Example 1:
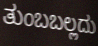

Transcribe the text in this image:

ತುಂಬಬಲ್ಲದು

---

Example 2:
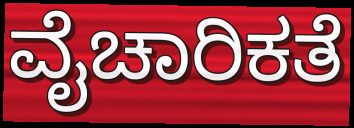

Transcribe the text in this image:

ವೈಚಾರಿಕತೆ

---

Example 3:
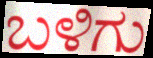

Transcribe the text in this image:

ಬಳಿಗು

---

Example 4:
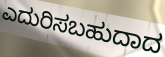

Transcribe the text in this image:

ಎದುರಿಸಬಹುದಾದ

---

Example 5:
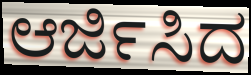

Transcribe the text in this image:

ಆರ್ಜಿಸಿದ